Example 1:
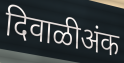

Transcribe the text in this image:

दिवाळीअंक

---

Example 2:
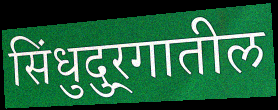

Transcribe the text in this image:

सिंधुदुर्गातील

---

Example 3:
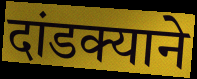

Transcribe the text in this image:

दांडक्याने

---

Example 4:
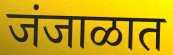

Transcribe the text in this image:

जंजाळात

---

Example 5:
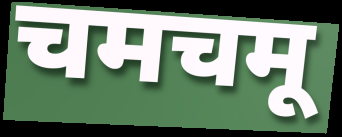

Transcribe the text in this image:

चमचमू